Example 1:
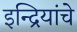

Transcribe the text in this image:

इन्द्रियांचे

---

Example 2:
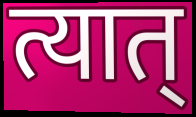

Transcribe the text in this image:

त्यात्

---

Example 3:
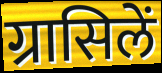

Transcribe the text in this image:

ग्रासिलें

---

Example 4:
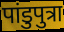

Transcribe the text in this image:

पांडुपुत्रा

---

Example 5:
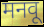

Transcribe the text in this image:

मनवू